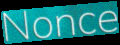
Nonce